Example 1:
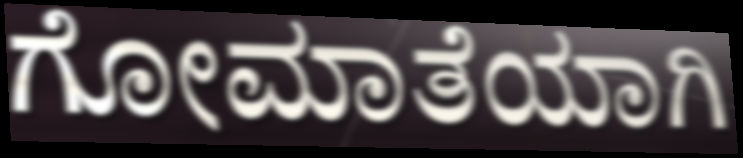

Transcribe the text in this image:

ಗೋಮಾತೆಯಾಗಿ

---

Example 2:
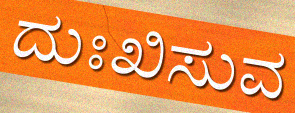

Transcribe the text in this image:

ದುಃಖಿಸುವ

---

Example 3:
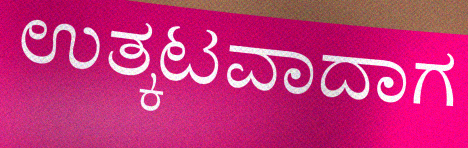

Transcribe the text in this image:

ಉತ್ಕಟವಾದಾಗ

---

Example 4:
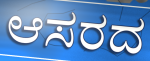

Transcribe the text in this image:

ಆಸರದ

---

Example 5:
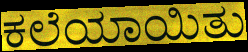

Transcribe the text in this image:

ಕಲೆಯಾಯಿತು